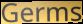
Germs